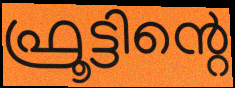
ഫ്രൂട്ടിന്റെ